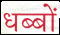
धब्बों